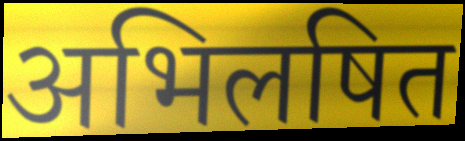
अभिलषित